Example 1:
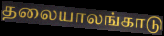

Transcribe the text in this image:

தலையாலங்காடு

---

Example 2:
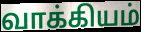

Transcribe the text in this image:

வாக்கியம்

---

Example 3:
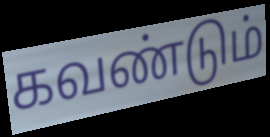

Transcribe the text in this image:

கவண்டும்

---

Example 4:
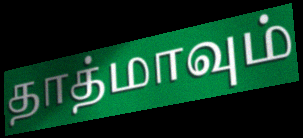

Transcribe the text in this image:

தாத்மாவும்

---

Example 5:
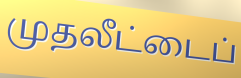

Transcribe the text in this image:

முதலீட்டைப்